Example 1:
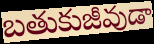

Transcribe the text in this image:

బతుకుజీవుడా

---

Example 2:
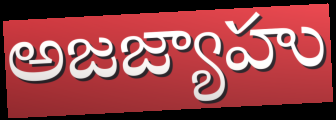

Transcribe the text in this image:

అజజ్యాహు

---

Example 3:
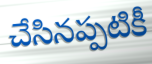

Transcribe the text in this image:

చేసినప్పటికీ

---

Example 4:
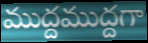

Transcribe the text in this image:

ముద్దముద్దగా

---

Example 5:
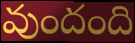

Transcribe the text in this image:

వుందంది